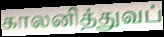
காலனித்துவப்